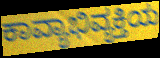
ಕಾವ್ಯಾಭಿವ್ಯಕ್ತಿಯ